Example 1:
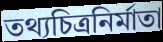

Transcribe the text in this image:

তথ্যচিত্রনির্মাতা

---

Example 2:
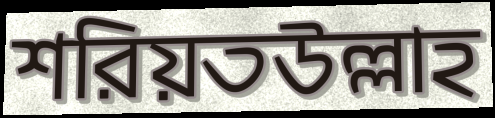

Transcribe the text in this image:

শরিয়তউল্লাহ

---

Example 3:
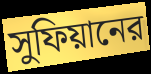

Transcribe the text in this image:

সুফিয়ানের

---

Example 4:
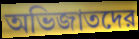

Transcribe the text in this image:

অভিজাতদের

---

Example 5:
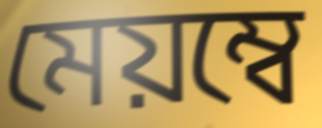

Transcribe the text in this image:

মেয়ম্বে